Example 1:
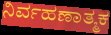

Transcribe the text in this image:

ನಿರ್ವಹಣಾತ್ಮಕ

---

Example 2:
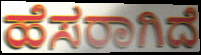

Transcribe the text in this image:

ಹೆಸರಾಗಿದೆ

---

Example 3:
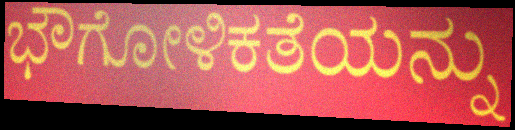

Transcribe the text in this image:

ಭೌಗೋಳಿಕತೆಯನ್ನು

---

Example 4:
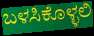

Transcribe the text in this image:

ಬಳಸಿಕೊಳ್ಳಲಿ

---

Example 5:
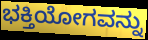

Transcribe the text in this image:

ಭಕ್ತಿಯೋಗವನ್ನು